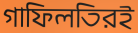
গাফিলতিরই